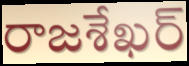
రాజశేఖర్